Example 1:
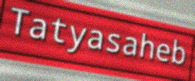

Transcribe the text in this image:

Tatyasaheb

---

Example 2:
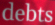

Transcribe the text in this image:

debts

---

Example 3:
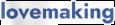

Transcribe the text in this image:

lovemaking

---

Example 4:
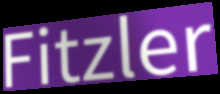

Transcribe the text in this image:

Fitzler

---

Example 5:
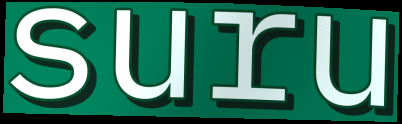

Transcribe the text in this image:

suru